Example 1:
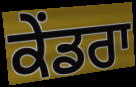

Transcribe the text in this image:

ਕੇਂਡਰਾ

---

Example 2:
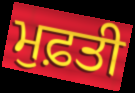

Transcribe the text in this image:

ਮੁਫ਼ਤੀ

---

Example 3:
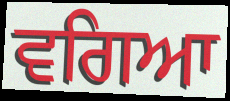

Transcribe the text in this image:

ਵਗਿਆ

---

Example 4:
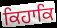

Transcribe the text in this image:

ਕਿਹਾਕਿ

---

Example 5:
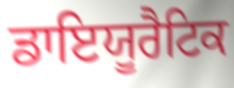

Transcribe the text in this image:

ਡਾਇਯੂਰੈਟਿਕ